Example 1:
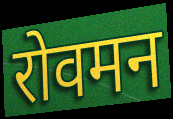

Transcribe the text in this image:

रोवमन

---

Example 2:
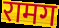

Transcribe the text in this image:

रामग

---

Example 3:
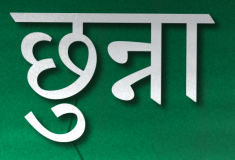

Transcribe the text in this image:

छुन्ना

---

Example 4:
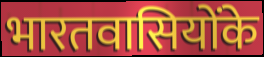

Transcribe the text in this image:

भारतवासियोंके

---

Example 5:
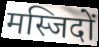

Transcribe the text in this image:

मस्जिदों